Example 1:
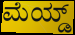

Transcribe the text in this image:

ಮೆಯ್ಡ್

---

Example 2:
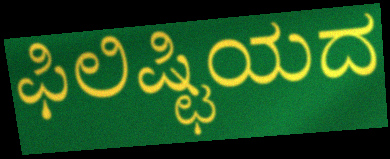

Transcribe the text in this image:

ಫಿಲಿಷ್ಟಿಯದ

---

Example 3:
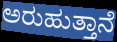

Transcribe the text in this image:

ಅರುಹುತ್ತಾನೆ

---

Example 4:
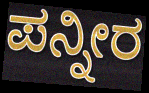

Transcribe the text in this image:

ಪನ್ನೀರ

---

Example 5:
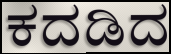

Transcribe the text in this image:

ಕದಡಿದ